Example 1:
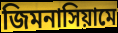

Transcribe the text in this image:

জিমনাসিয়ামে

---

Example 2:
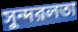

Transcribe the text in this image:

সুন্দরলতা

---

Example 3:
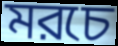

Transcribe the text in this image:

মরচে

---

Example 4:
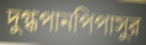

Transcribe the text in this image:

দুগ্ধপানপিপাসুর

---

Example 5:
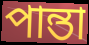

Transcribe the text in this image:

পান্তা